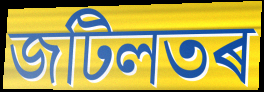
জটিলতৰ